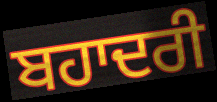
ਬਹਾਦਰੀ